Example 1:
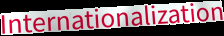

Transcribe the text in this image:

Internationalization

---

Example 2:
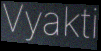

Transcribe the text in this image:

Vyakti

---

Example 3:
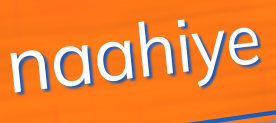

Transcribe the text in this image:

naahiye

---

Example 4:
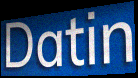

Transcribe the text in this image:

Datin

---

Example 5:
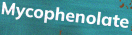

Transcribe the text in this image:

Mycophenolate